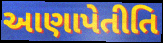
આણાપેતીતિ